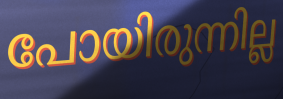
പോയിരുന്നില്ല